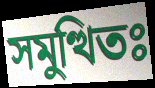
সমুত্থিতঃ